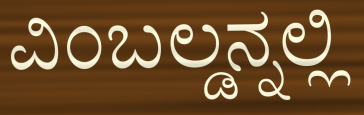
ವಿಂಬಲ್ಡನ್ನಲ್ಲಿ